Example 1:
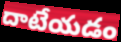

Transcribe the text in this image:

దాటేయడం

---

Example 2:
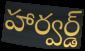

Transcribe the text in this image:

హార్వర్డ్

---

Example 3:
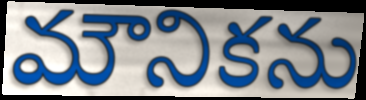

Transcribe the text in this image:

మౌనికను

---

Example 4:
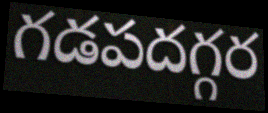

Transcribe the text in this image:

గడపదగ్గర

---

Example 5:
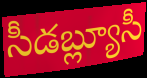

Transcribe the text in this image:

సీడబ్ల్యూసీ